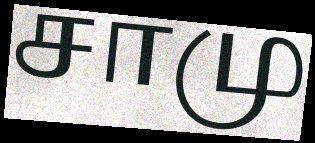
சாமு